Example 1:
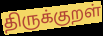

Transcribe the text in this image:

திருக்குறள்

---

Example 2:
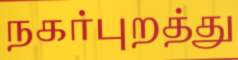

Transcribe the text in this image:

நகர்புறத்து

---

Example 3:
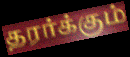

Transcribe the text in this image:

தரர்க்கும்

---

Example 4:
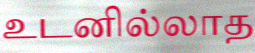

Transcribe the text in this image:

உடனில்லாத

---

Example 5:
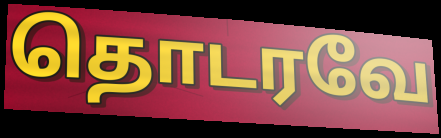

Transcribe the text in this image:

தொடரவே